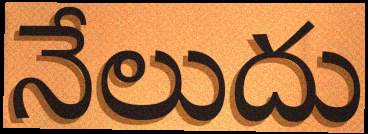
నేలుదు